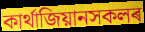
কাৰ্থাজিয়ানসকলৰ